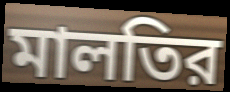
মালতির